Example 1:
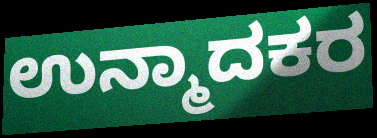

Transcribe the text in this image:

ಉನ್ಮಾದಕರ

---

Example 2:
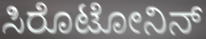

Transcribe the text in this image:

ಸಿರೊಟೋನಿನ್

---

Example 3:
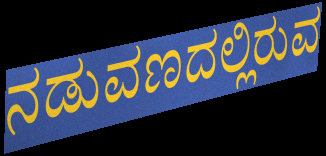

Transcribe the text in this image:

ನಡುವಣದಲ್ಲಿರುವ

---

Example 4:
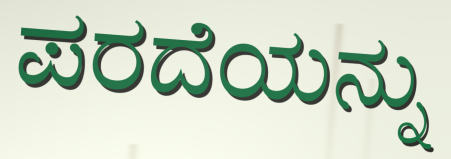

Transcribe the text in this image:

ಪರದೆಯನ್ನು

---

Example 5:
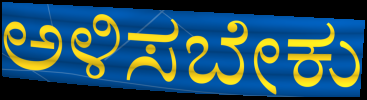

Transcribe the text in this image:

ಅಳಿಸಬೇಕು